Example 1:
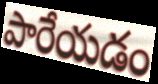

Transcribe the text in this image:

పారేయడం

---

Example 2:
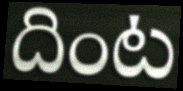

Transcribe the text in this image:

దింట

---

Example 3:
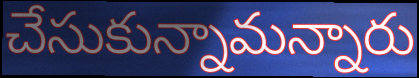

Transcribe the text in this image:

చేసుకున్నామన్నారు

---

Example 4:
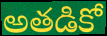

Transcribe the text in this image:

అతడికో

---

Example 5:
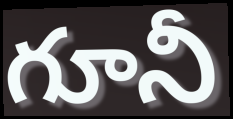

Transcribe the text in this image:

గూనీ